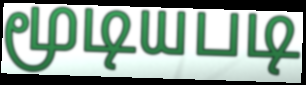
மூடியபடி